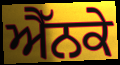
ਐੱਨਕੇ